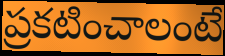
ప్రకటించాలంటే